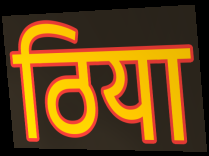
ठिया